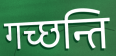
गच्छन्ति